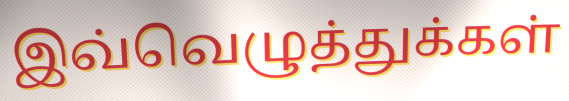
இவ்வெழுத்துக்கள்